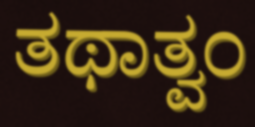
ತಥಾತ್ವಂ